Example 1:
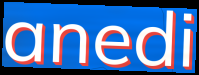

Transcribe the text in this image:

anedi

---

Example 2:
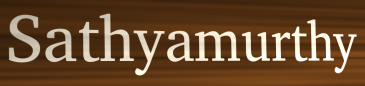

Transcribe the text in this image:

Sathyamurthy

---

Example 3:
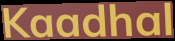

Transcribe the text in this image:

Kaadhal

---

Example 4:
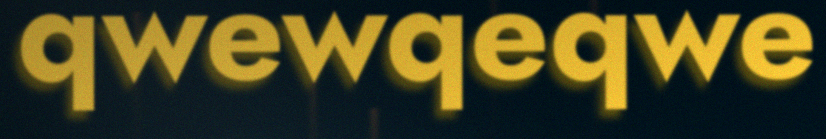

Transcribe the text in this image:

qwewqeqwe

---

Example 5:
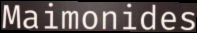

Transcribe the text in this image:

Maimonides